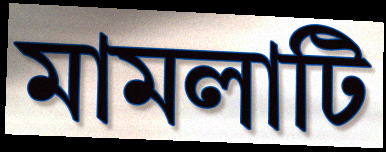
মামলাটি